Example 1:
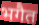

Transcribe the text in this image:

भगैत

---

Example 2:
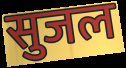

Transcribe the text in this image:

सुजल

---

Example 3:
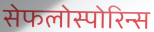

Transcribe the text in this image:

सेफलोस्पोरिन्स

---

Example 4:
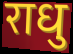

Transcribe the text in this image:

राधु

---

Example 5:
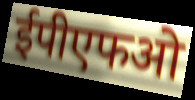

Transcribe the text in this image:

ईपीएफओ